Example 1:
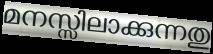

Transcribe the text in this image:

മനസ്സിലാക്കുന്നതു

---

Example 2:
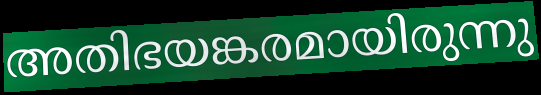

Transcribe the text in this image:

അതിഭയങ്കരമായിരുന്നു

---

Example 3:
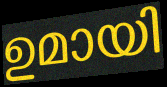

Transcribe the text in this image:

ഉമായി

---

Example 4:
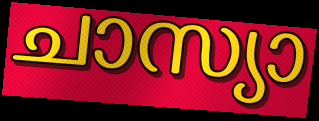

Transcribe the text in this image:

ചാസ്യാ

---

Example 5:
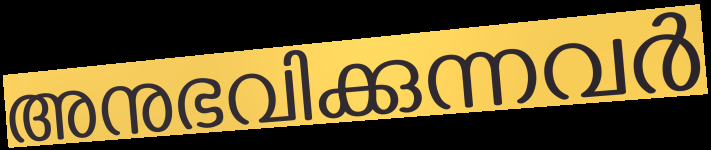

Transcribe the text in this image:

അനുഭവിക്കുന്നവർ